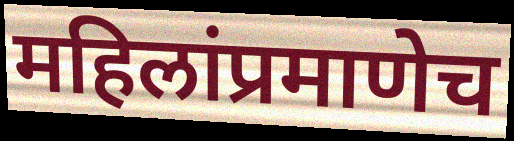
महिलांप्रमाणेच